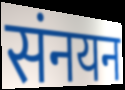
संनयन